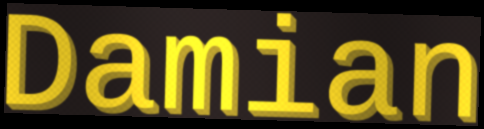
Damian